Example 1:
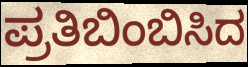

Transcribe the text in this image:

ಪ್ರತಿಬಿಂಬಿಸಿದ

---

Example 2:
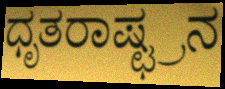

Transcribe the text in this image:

ಧೃತರಾಷ್ಟ್ರನ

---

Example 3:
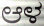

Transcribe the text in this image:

ಆಳ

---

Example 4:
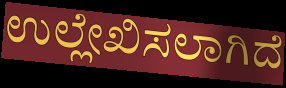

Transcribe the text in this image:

ಉಲ್ಲೇಖಿಸಲಾಗಿದೆ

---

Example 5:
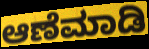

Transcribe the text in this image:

ಆಣೆಮಾಡಿ